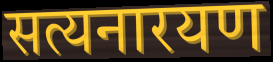
सत्यनारयण